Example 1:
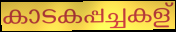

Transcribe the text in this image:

കാടകപ്പച്ചകള്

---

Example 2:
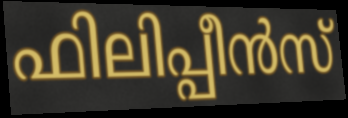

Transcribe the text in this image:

ഫിലിപ്പീൻസ്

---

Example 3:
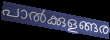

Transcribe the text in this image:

പാൽക്കുളങ്ങര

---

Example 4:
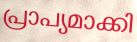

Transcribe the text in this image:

പ്രാപ്യമാക്കി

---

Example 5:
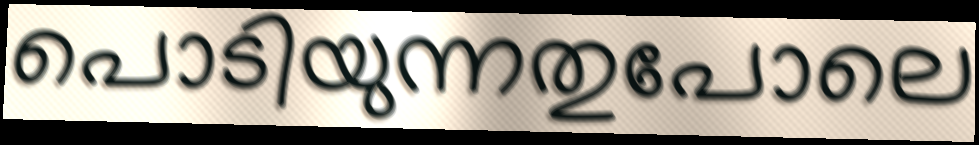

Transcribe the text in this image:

പൊടിയുന്നതുപോലെ